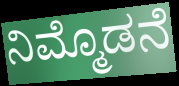
ನಿಮ್ಮೊಡನೆ